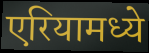
एरियामध्ये